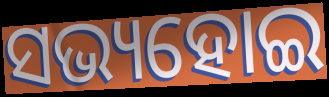
ସଭ୍ୟହୋଇ